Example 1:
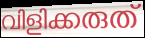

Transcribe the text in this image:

വിളിക്കരുത്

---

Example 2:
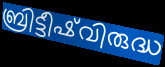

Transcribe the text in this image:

ബ്രിട്ടീഷ്‌വിരുദ്ധ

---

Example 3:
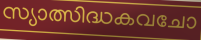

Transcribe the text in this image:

സ്യാത്സിദ്ധകവചോ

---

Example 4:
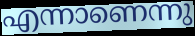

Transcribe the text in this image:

എന്നാണെന്നു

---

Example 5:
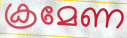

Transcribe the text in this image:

ക്രമേണ